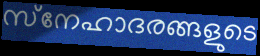
സ്‌നേഹാദരങ്ങളുടെ